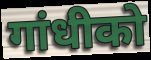
गांधीको